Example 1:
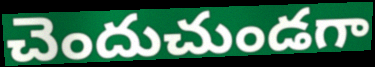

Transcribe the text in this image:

చెందుచుండగా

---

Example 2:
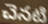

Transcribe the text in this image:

చెనటి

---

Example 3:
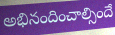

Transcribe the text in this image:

అభినందించాల్సిందే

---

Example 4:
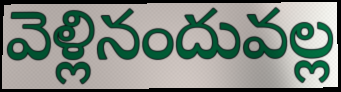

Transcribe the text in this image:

వెళ్లినందువల్ల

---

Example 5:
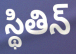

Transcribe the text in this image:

స్థితిన్